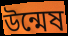
উন্মেষ